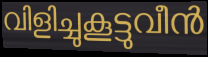
വിളിച്ചുകൂട്ടുവീൻ